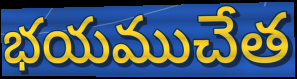
భయముచేత